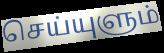
செய்யுளும்